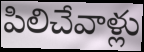
పిలిచేవాళ్లు